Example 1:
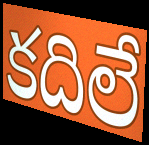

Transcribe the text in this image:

కదిలే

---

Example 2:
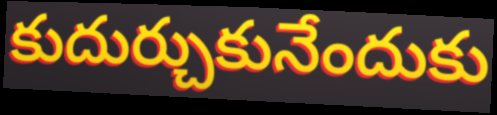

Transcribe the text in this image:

కుదుర్చుకునేందుకు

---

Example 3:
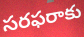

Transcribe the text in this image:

సరఫరాకు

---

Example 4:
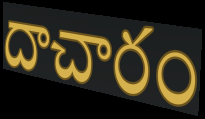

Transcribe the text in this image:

దాచారం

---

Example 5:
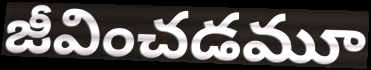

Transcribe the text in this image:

జీవించడమూ